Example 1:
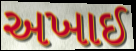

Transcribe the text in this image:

અખાઈ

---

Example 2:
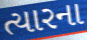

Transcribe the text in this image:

ત્યારના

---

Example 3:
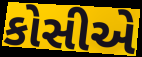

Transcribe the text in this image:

કોસીએ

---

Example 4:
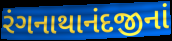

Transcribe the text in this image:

રંગનાથાનંદજીનાં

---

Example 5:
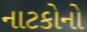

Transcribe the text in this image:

નાટકોનો